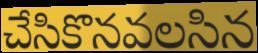
చేసికొనవలసిన